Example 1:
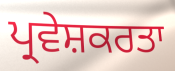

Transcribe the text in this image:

ਪ੍ਰਵੇਸ਼ਕਰਤਾ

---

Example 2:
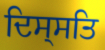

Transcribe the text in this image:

ਦਿਸ੍ਸਤਿ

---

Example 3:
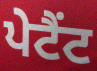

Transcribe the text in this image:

ਪੇਟੈਂਟ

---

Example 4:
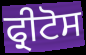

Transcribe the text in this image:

ਫ੍ਰੀਟੋਸ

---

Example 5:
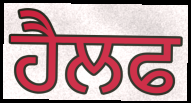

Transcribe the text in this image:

ਹੈਲਫ